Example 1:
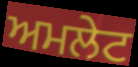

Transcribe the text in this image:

ਅਮਲੇਟ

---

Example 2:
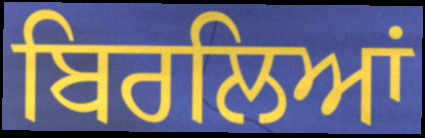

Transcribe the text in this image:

ਬਿਰਲਿਆਂ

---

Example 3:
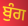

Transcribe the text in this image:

ਬੁੰਗ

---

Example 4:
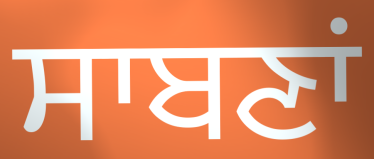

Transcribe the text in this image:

ਸਾਬਣਾਂ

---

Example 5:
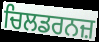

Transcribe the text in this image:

ਚਿਲਡਰਨਜ਼